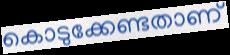
കൊടുക്കേണ്ടതാണ്